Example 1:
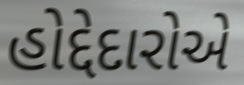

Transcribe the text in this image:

હોદ્દેદારોએ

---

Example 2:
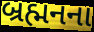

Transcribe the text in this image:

બ્રહ્મનના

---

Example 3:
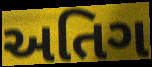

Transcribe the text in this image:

અતિગ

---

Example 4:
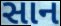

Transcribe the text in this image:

સાન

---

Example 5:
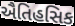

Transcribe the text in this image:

ઐતિહસિક